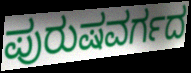
ಪುರುಷವರ್ಗದ